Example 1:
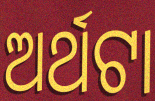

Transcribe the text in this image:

ଅର୍ଥଟା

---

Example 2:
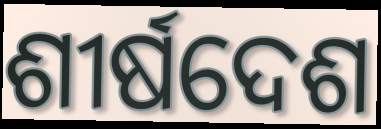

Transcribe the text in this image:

ଶୀର୍ଷଦେଶ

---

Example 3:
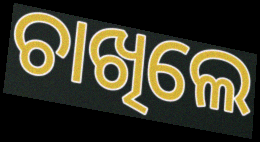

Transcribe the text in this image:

ଚାଖିଲେ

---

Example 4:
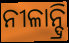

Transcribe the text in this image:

ନୀଳାନ୍ଦ୍ରି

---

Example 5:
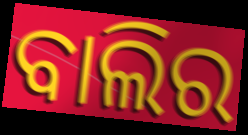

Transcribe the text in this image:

ବାଲିର